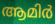
ആമിർ